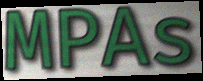
MPAs